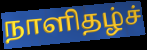
நாளிதழ்ச்